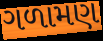
ગળામણ